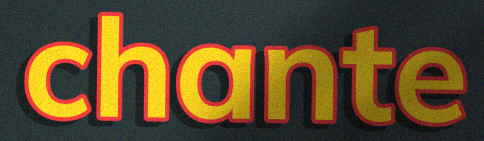
chante